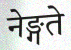
नेङ्गते